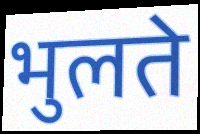
भुलते